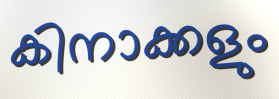
കിനാക്കളും